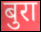
बुरा